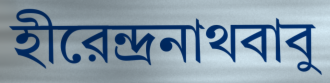
হীরেন্দ্রনাথবাবু